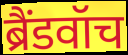
ब्रैंडवॉच